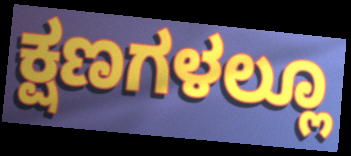
ಕ್ಷಣಗಳಲ್ಲೂ